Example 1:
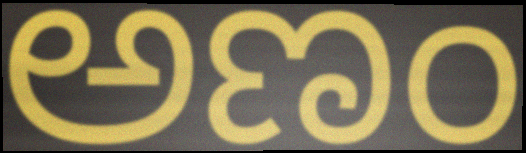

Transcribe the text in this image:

ಅಣಂ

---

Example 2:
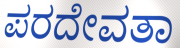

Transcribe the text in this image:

ಪರದೇವತಾ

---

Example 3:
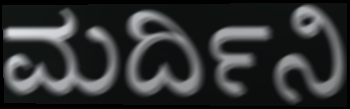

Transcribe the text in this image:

ಮರ್ದಿನಿ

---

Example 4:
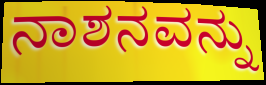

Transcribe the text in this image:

ನಾಶನವನ್ನು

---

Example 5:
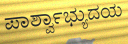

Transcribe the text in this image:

ಪಾರ್ಶ್ವಾಭ್ಯುದಯ